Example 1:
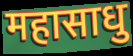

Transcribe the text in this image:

महासाधु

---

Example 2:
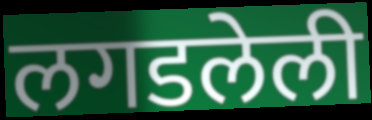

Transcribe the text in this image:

लगडलेली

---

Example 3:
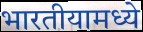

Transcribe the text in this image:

भारतीयामध्ये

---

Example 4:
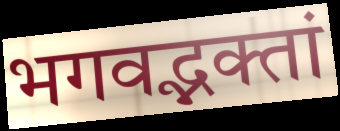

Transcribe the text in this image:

भगवद्भक्तां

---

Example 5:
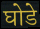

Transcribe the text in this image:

घोडे